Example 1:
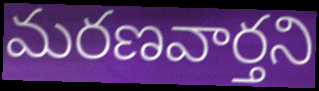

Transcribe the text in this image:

మరణవార్తని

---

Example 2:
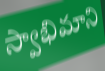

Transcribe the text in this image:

స్వాభిమాని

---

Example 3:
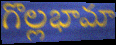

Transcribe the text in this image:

గొల్లభామా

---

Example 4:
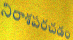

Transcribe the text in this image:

నిరాశపరచడం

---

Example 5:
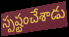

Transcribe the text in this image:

స్పష్టంచేశాడు